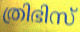
ത്രിഭിസ്